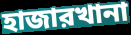
হাজারখানা